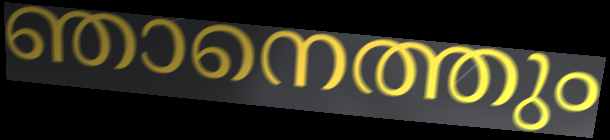
ഞാനെത്തും